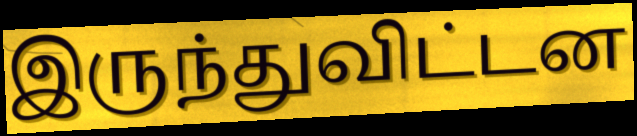
இருந்துவிட்டன